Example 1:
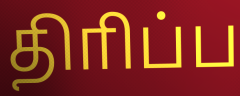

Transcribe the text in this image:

திரிப்ப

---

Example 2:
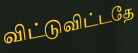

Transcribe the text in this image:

விட்டுவிட்டதே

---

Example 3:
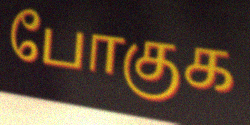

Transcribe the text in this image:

போகுக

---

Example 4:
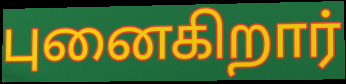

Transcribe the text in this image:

புனைகிறார்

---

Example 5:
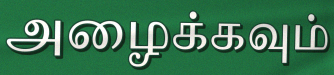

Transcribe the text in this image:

அழைக்கவும்